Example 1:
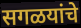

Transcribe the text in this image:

सगळयांचे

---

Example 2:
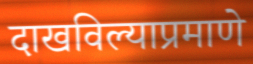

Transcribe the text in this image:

दाखविल्याप्रमाणे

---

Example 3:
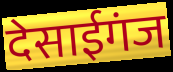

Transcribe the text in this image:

देसाईगंज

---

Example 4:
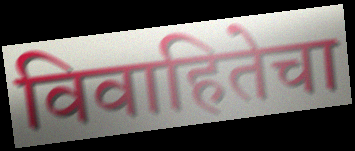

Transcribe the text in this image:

विवाहितेचा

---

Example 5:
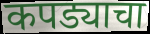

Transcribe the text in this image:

कपड्याचा